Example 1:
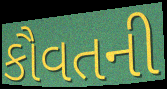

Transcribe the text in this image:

કૌવતની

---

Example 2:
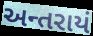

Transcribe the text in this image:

અન્તરાયં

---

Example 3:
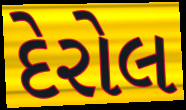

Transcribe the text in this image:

દેરોલ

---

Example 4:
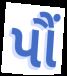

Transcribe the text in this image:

પૌં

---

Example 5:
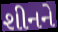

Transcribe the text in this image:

શીનને